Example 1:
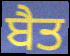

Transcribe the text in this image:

ਬੈਤ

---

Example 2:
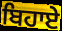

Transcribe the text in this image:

ਬਿਹਾਏ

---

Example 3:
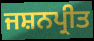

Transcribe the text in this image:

ਜਸ਼ਨਪ੍ਰੀਤ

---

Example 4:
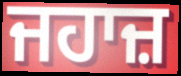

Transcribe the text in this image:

ਜਹਾਜ਼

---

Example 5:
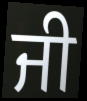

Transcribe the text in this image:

ਜੀ